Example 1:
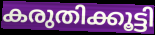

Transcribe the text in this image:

കരുതിക്കൂട്ടി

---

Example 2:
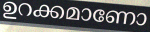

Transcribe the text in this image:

ഉറക്കമാണോ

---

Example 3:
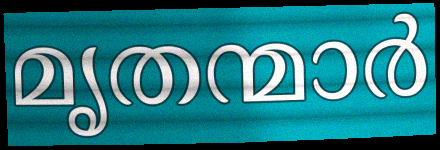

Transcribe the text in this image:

മൃതന്മാർ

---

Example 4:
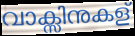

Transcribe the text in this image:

വാക്സിനുകള്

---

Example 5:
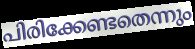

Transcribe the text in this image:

പിരിക്കേണ്ടതെന്നും